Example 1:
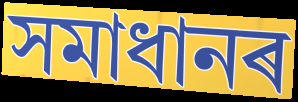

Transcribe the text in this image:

সমাধানৰ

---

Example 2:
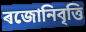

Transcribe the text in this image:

ৰজোনিবৃত্তি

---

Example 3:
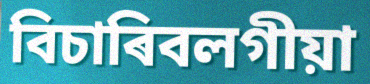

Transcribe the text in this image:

বিচাৰিবলগীয়া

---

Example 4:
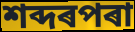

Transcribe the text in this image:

শব্দৰপৰা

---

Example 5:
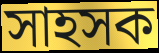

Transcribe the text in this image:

সাহসক